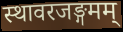
स्थावरजङ्गमम्